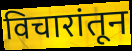
विचारांतून